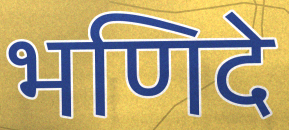
भणिदे